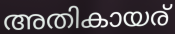
അതികായര്